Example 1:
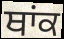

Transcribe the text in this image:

ਥਾਂਕ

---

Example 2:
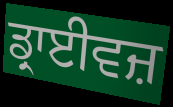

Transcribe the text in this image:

ਡ੍ਰਾਈਵਜ਼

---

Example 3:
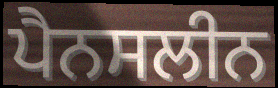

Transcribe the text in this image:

ਪੈਨਸਲੀਨ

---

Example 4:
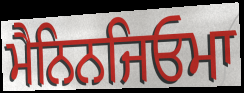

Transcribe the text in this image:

ਮੈਨਿਨਜਿਓਮਾ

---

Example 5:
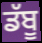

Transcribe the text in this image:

ਡੱਬੂ